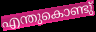
എന്തുകൊണ്ടു്